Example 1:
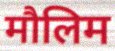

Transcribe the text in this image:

मौलिम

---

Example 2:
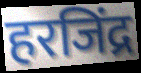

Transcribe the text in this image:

हरजिंद्र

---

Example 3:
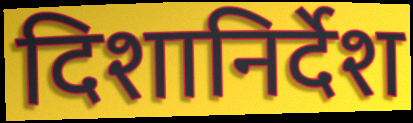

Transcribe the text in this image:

दिशानिर्देश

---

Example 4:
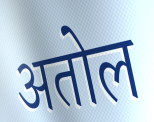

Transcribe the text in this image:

अतोल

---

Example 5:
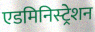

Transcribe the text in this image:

एडमिनिस्‍ट्रेशन